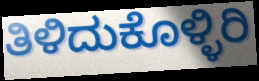
ತಿಳಿದುಕೊಳ್ಳಿರಿ